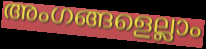
അംഗങ്ങളെല്ലാം